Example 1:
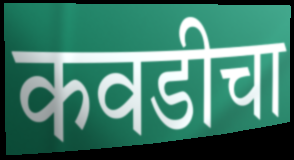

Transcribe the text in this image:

कवडीचा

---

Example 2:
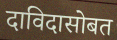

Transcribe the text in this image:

दाविदासोबत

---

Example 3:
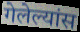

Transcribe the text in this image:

गेलेल्यांस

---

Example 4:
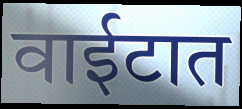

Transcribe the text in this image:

वाईटात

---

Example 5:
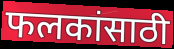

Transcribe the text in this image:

फलकांसाठी